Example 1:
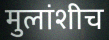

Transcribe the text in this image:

मुलांशीच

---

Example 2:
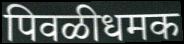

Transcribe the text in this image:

पिवळीधमक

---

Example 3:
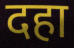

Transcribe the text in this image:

दहा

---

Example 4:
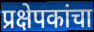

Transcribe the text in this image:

प्रक्षेपकांचा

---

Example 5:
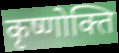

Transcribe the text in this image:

कृष्णोक्ति